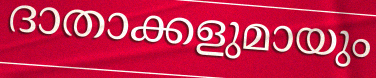
ദാതാക്കളുമായും